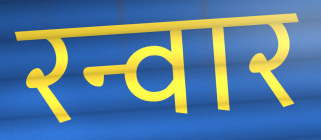
रन्वार